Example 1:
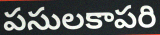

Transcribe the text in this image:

పసులకాపరి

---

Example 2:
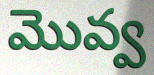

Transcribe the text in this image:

మొవ్వ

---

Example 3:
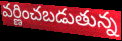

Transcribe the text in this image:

వర్ణించబడుతున్న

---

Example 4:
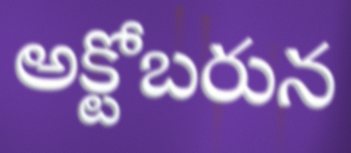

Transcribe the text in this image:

అక్టోబరున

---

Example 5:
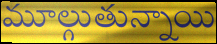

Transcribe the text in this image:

మూల్గుతున్నాయి